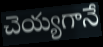
చెయ్యగానే